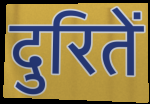
दुरितें